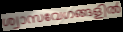
ശ്വാസവേഗങ്ങളിൽ